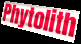
Phytolith